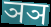
ञञ